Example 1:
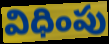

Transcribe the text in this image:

విధింపు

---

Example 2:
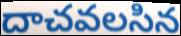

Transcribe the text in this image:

దాచవలసిన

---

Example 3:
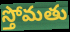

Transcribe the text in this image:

స్తోమతు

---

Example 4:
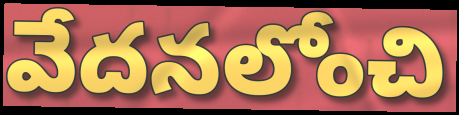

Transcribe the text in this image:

వేదనలోంచి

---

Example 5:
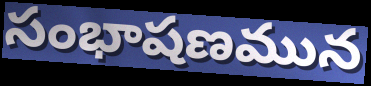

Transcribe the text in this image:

సంభాషణమున